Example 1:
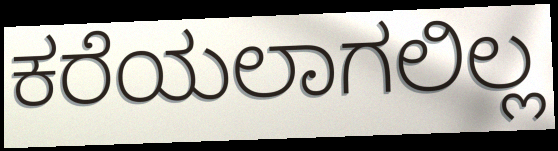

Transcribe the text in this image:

ಕರೆಯಲಾಗಲಿಲ್ಲ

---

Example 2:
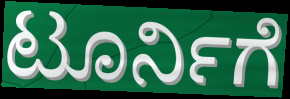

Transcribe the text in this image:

ಟೂರ್ನಿಗೆ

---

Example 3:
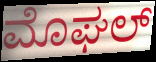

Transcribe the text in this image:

ಮೊಘಲ್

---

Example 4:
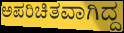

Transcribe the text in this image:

ಅಪರಿಚಿತವಾಗಿದ್ದ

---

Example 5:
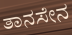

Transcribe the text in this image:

ತಾನಸೇನ